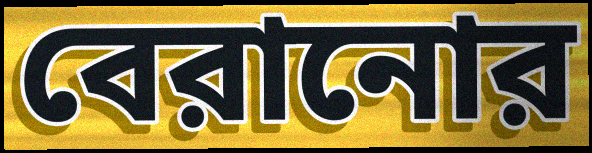
বেরানোর